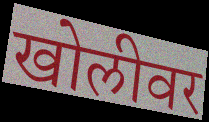
खोलीवर